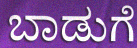
ಬಾಡುಗೆ